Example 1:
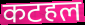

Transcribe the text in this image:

कटहल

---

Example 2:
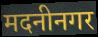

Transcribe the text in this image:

मदनीनगर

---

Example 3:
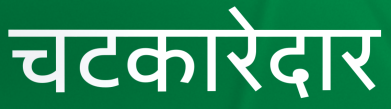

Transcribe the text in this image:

चटकारेदार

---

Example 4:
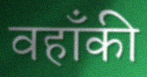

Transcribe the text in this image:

वहाँकी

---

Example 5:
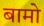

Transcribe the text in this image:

बामो